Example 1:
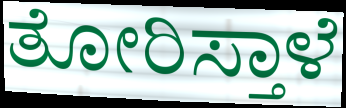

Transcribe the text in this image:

ತೋರಿಸ್ತಾಳೆ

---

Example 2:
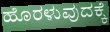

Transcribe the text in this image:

ಹೊರಳುವುದಕ್ಕೆ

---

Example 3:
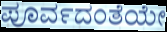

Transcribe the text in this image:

ಪೂರ್ವದಂತೆಯೇ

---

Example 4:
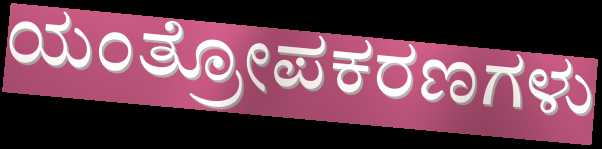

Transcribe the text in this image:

ಯಂತ್ರೋಪಕರಣಗಳು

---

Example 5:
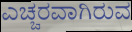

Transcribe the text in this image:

ಎಚ್ಚರವಾಗಿರುವ